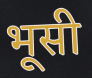
भूसी